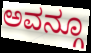
ಅವನ್ಗೂ